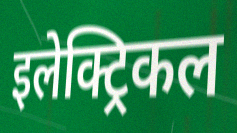
इलेक्ट्रिकल